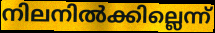
നിലനിൽക്കില്ലെന്ന്